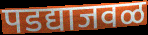
पडद्याजवळ